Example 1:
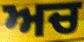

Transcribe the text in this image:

ਅਚ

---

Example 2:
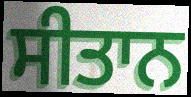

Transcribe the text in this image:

ਸੀਤਾਨ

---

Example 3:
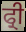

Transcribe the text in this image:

ਫ੍ਰੀ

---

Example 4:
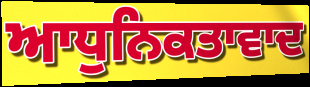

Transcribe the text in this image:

ਆਧੁਨਿਕਤਾਵਾਦ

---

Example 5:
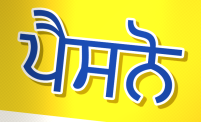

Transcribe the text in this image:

ਪੈਸਨੋ